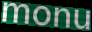
monu